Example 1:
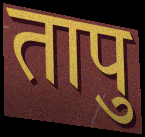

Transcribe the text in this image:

तापु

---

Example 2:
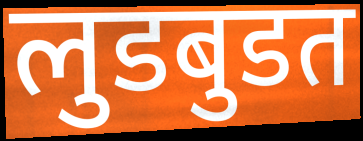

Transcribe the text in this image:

लुडबुडत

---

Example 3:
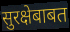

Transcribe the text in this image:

सुरक्षेबाबत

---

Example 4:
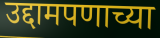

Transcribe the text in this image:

उद्दामपणाच्या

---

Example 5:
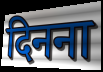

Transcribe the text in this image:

दिनना